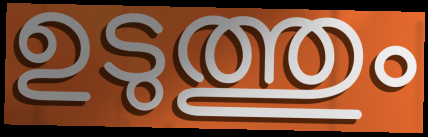
ഉടുത്തും